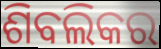
ଶିବଲିକର